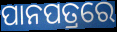
ପାନପତ୍ରରେ